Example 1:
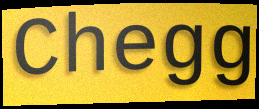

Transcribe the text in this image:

Chegg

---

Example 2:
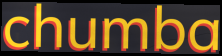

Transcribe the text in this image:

chumba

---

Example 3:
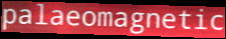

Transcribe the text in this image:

palaeomagnetic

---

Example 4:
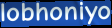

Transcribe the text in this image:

lobhoniyo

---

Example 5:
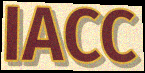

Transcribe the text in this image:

IACC